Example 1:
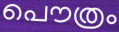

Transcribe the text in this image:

പൌത്രം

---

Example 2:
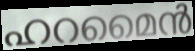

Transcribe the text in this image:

ഹറമൈൻ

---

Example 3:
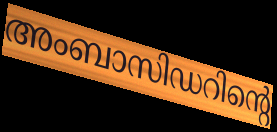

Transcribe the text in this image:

അംബാസിഡറിന്റെ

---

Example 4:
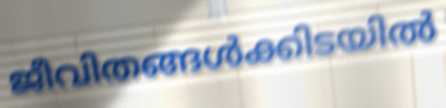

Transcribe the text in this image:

ജീവിതങ്ങൾക്കിടയിൽ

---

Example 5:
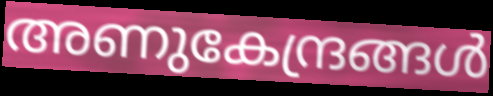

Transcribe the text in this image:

അണുകേന്ദ്രങ്ങൾ